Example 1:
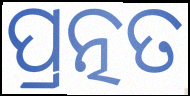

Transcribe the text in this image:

ପ୍ରତ୍ନତ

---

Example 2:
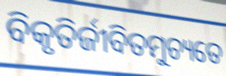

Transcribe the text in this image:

ବିକୃତିର୍ଜୀବିତମୁଚ୍ୟତେ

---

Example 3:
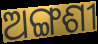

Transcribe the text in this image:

ଅଙ୍ଗଶୀ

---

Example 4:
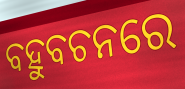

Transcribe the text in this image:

ବହୁବଚନରେ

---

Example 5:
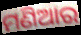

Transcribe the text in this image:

ମଣିଆର